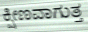
ಕ್ಷೀಣವಾಗುತ್ತ